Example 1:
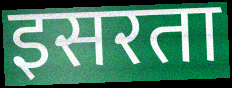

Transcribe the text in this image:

इसरता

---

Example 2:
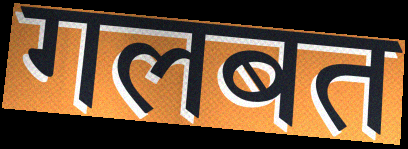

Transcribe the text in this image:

गलबत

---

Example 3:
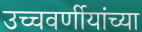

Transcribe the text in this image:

उच्चवर्णीयांच्या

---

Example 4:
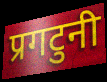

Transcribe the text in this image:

प्रगटुनी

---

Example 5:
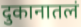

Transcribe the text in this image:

दुकानातलं